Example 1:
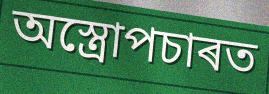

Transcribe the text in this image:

অস্ত্ৰোপচাৰত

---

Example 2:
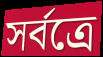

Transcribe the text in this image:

সৰ্বত্ৰে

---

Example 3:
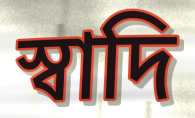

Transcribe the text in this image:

স্বাদি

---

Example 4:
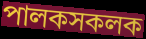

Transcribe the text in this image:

পালকসকলক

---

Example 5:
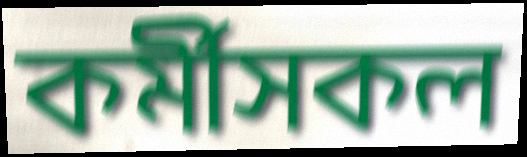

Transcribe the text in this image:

কৰ্মীসকল